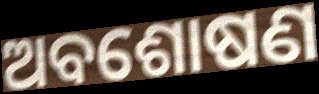
ଅବଶୋଷଣ